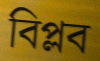
বিপ্লব